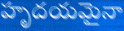
హృదయమైనా